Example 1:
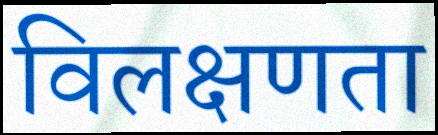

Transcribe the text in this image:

विलक्षणता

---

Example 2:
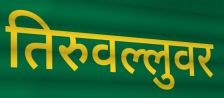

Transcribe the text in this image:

तिरुवल्लुवर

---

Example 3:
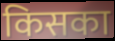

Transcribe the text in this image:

किसका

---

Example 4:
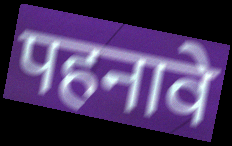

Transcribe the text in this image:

पहनावे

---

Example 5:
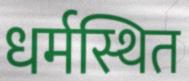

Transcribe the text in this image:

धर्मस्थित